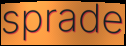
sprade